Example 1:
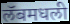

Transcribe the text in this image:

लॅबमधली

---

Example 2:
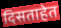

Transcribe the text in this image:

दिसताहेत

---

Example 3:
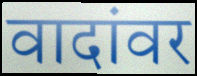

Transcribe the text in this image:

वादांवर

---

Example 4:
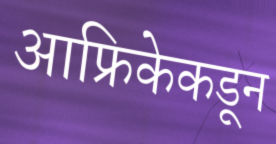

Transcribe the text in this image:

आफ्रिकेकडून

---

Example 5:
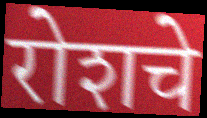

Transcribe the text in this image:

रोशचे